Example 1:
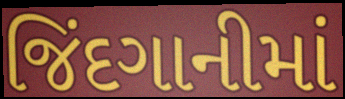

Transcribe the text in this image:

જિંદગાનીમાં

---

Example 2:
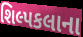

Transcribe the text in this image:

શિલ્પકલાના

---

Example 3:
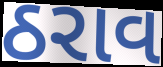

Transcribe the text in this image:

ઠરાવ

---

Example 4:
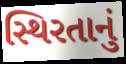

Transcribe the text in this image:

સ્થિરતાનું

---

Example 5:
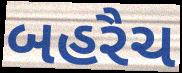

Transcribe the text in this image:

બહરૈચ